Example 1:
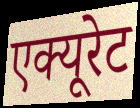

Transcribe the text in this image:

एक्यूरेट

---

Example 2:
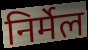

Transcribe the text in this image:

निर्मेल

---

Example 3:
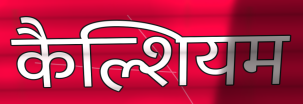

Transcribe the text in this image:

कैल्शियम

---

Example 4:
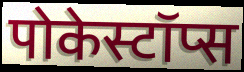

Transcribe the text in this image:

पोकेस्टॉप्स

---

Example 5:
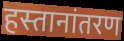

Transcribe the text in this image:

हस्तानांतरण